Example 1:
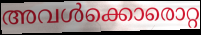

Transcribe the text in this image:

അവൾക്കൊരൊറ്റ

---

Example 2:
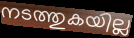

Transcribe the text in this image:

നടത്തുകയില്ല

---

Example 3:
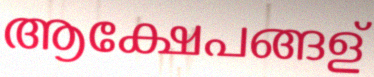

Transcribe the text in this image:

ആക്ഷേപങ്ങള്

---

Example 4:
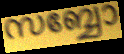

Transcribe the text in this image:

സബ്ബോ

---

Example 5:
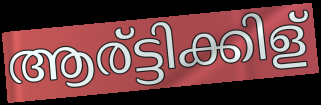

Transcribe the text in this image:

ആര്ട്ടിക്കിള്